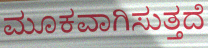
ಮೂಕವಾಗಿಸುತ್ತದೆ